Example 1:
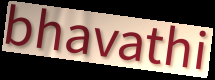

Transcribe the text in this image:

bhavathi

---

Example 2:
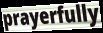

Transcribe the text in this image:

prayerfully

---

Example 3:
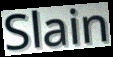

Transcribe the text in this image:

Slain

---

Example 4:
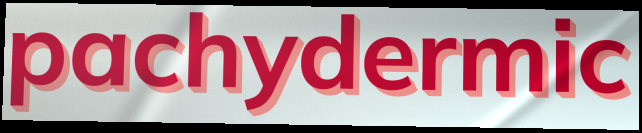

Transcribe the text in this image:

pachydermic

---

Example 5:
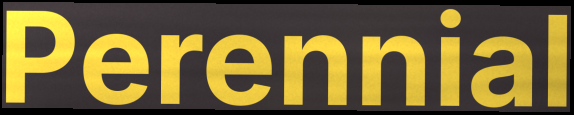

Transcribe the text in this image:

Perennial